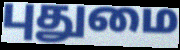
புதுமை